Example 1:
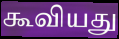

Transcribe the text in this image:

கூவியது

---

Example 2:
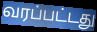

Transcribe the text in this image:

வரப்பட்டது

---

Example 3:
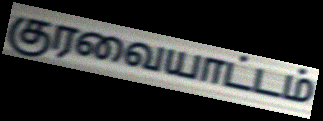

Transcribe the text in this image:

குரவையாட்டம்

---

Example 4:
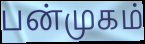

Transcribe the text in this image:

பன்முகம்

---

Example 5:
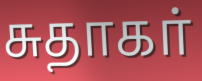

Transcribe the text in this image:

சுதாகர்